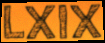
LXIX